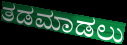
ತಡಮಾಡಲು